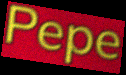
Pepe